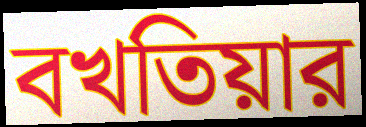
বখতিয়ার